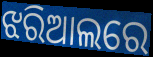
ଝରିଆଲରେ